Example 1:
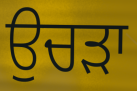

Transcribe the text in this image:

ਉਚੜਾ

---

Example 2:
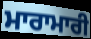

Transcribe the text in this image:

ਮਾਰਾਮਾਰੀ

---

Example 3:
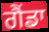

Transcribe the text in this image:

ਗੈਂਡਾ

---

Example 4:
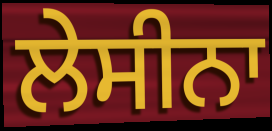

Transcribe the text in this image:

ਲੇਸੀਨਾ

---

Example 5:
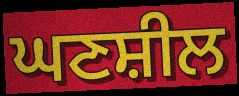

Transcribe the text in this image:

ਘਣਸ਼ੀਲ